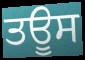
ਤਊਸ